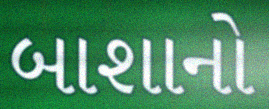
બાશાનો